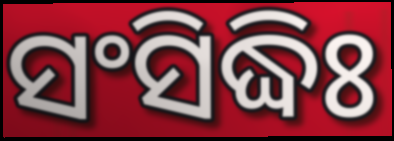
ସଂସିଦ୍ଧିଃ